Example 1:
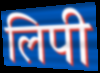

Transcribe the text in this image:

लिपी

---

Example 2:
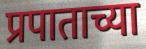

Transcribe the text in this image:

प्रपाताच्या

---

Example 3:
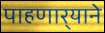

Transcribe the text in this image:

पाहणार्‍याने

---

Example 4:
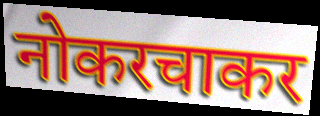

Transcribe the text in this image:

नोकरचाकर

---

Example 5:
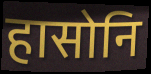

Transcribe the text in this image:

हासोनि